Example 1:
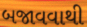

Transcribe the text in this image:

બજાવવાથી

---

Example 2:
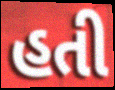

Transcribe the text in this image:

હતી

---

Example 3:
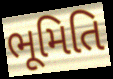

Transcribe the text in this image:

ભૂમિતિ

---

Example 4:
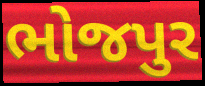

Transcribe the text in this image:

ભોજપુર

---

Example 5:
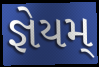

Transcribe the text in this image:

જ્ઞેયમ્